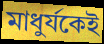
মাধুর্যকেই